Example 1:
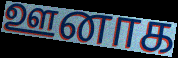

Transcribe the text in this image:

ஊனாக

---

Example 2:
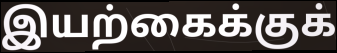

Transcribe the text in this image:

இயற்கைக்குக்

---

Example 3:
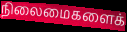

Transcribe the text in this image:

நிலைமைகளைக்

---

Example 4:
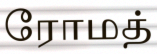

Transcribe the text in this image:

ரோமத்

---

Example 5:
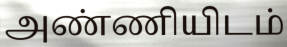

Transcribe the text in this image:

அண்ணியிடம்